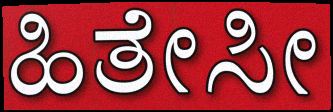
ಹಿತೇಸೀ